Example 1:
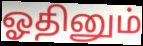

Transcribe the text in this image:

ஓதினும்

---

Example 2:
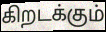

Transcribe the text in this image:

கிறடக்கும்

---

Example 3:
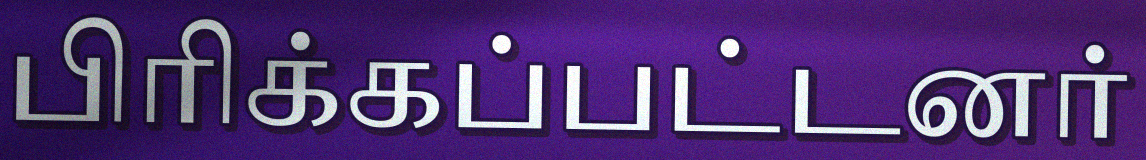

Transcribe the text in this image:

பிரிக்கப்பட்டனர்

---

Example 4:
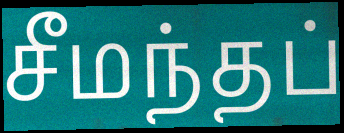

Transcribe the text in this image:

சீமந்தப்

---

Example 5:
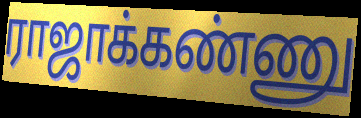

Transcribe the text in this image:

ராஜாக்கண்ணு